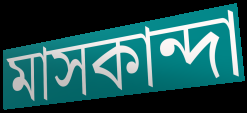
মাসকান্দা